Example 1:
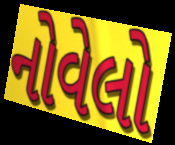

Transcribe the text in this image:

નોવેલો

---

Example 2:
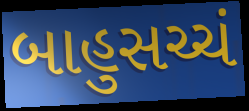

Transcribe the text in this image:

બાહુસચ્ચં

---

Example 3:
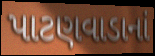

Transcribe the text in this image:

પાટણવાડાનાં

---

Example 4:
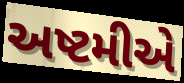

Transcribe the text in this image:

અષ્ટમીએ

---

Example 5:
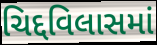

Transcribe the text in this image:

ચિદ્દવિલાસમાં